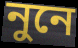
নুনে